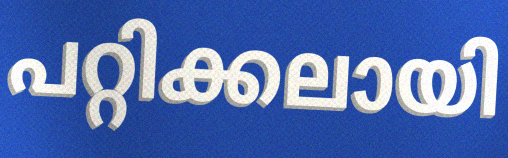
പറ്റിക്കലായി